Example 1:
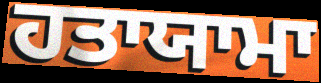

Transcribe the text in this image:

ਹਤਾਯਾਮਾ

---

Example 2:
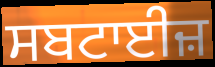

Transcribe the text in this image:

ਸਬਟਾਈਜ਼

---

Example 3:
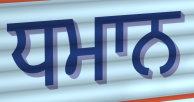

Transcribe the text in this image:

ਧਮਾਨ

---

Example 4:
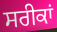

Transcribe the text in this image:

ਸਰੀਕਾਂ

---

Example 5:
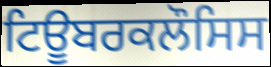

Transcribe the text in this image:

ਟਿਊਬਰਕਲੌਸਿਸ